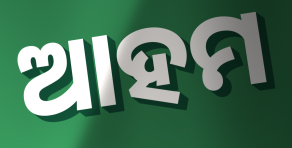
ଆହମ